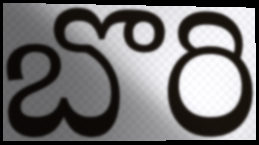
బొరి